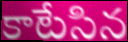
కాటేసిన